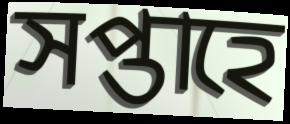
সপ্তাহে